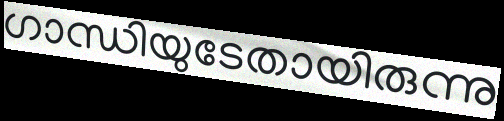
ഗാന്ധിയുടേതായിരുന്നു